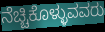
ನೆಚ್ಚಿಕೊಳ್ಳುವವರು